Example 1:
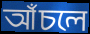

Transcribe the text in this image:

আঁচলে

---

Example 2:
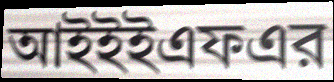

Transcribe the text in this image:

আইইইএফএর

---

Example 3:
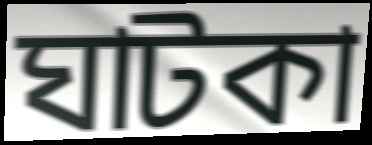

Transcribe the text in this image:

ঘাটকা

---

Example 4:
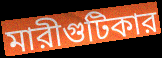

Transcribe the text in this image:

মারীগুটিকার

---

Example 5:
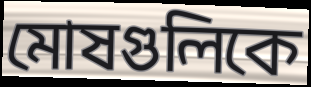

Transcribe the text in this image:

মোষগুলিকে